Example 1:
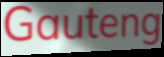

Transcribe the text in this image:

Gauteng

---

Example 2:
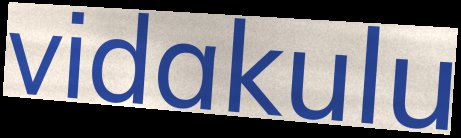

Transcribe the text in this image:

vidakulu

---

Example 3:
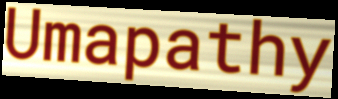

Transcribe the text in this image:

Umapathy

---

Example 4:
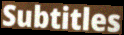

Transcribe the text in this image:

Subtitles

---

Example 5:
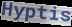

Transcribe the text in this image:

Hyptis